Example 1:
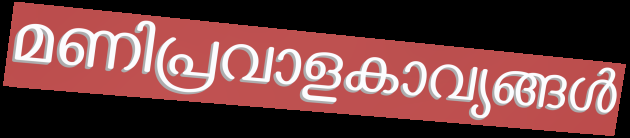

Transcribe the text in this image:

മണിപ്രവാളകാവ്യങ്ങൾ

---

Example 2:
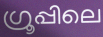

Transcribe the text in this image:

ഗ്രൂപ്പിലെ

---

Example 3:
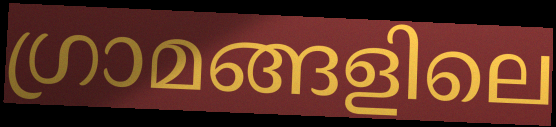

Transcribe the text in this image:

ഗ്രാമങ്ങളിലെ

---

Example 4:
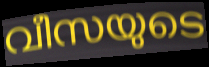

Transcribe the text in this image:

വീസയുടെ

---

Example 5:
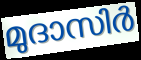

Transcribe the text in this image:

മുദാസിർ